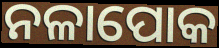
ନଳାପୋକ